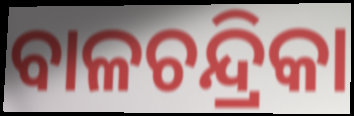
ବାଳଚନ୍ଦ୍ରିକା